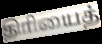
திரியைத்